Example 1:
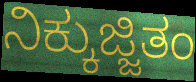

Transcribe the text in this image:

ನಿಕ್ಕುಜ್ಜಿತಂ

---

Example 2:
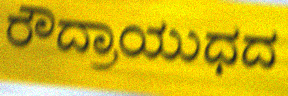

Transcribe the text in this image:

ರೌದ್ರಾಯುಧದ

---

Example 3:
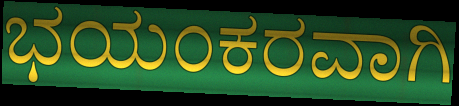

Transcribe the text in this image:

ಭಯಂಕರವಾಗಿ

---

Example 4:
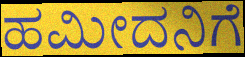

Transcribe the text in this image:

ಹಮೀದನಿಗೆ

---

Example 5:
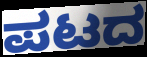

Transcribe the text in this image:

ಪಟದ